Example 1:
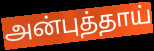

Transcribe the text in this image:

அன்புத்தாய்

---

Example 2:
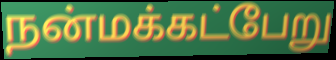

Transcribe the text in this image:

நன்மக்கட்பேறு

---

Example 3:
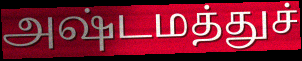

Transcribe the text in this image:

அஷ்டமத்துச்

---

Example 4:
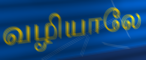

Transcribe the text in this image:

வழியாலே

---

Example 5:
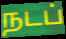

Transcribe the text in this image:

நடப்